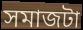
সমাজটা